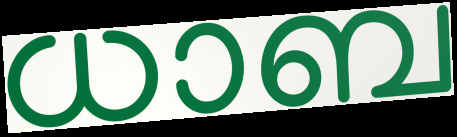
ധാബ